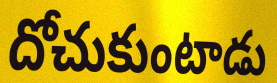
దోచుకుంటాడు